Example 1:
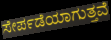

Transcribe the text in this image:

ಸೇರ್ಪಡೆಯಾಗುತ್ತವೆ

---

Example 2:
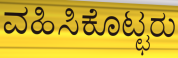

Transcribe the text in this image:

ವಹಿಸಿಕೊಟ್ಟರು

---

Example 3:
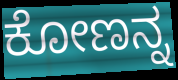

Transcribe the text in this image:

ಕೋಣನ್ನ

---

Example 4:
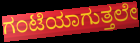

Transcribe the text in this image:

ಗಂಟೆಯಾಗುತ್ತಲೇ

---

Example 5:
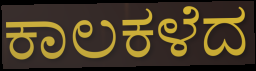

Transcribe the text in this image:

ಕಾಲಕಳೆದ